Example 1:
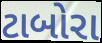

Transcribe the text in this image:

ટાબોરા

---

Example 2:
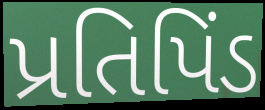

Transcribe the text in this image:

પ્રતિપિંડ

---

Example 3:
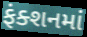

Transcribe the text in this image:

ફંક્શનમાં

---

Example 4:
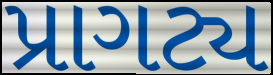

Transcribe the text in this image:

પ્રાગટ્ય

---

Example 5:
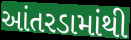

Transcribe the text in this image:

આંતરડામાંથી